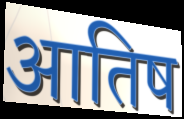
आतिष